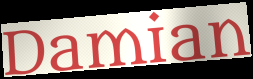
Damian